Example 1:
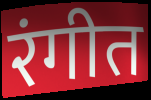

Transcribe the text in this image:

रंगीत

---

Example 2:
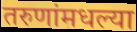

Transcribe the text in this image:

तरुणांमधल्या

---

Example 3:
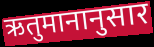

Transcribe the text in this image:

ऋतुमानानुसार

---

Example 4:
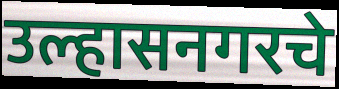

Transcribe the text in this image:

उल्हासनगरचे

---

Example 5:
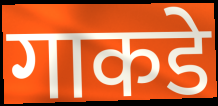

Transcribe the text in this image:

गाकडे